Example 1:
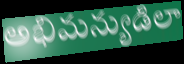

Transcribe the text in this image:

అభిమన్యుడిలా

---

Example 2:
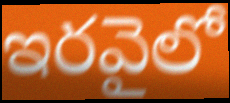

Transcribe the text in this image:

ఇరవైలో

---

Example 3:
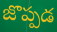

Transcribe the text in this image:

జొప్పడ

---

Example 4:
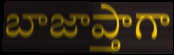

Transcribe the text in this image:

బాజాప్తాగా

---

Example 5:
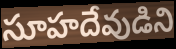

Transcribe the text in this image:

సూహదేవుడిని